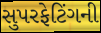
સુપરફેટિંગની